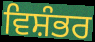
ਵਿਸ਼ੰਭਰ